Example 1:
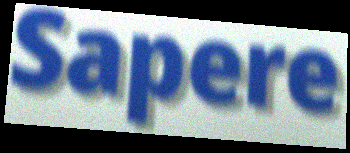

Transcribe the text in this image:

Sapere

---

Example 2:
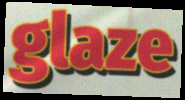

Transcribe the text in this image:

glaze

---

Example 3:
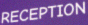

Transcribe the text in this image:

RECEPTION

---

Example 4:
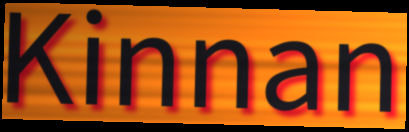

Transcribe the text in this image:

Kinnan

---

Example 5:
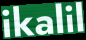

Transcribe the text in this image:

ikalil